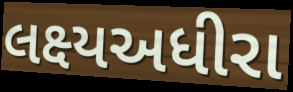
લક્ષ્યઅધીરા